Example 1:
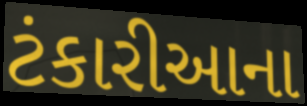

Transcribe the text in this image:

ટંકારીઆના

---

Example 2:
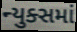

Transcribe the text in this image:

ન્યુક્સમાં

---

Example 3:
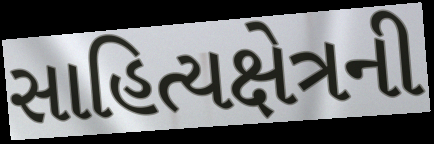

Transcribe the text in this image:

સાહિત્યક્ષેત્રની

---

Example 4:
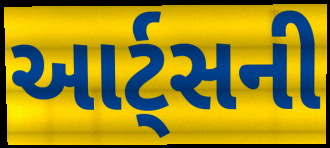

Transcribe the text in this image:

આર્ટ્સની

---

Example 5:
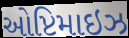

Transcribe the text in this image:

ઓપ્ટિમાઇઝ